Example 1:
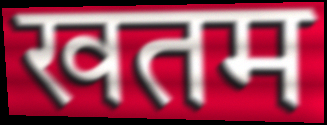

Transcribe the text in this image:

खतम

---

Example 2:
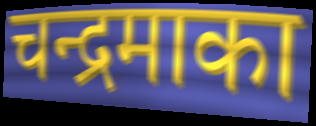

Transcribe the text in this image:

चन्द्रमाका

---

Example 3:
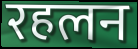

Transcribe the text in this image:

रहलन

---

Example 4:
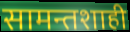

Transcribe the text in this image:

सामन्तशाही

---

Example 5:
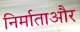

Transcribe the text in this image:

निर्माताऔर